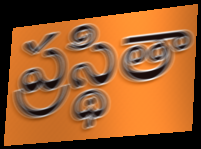
ప్రస్థితా